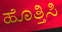
ಹೊತ್ತಿಸಿ